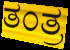
ತಂತ್ರ